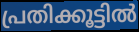
പ്രതിക്കൂട്ടിൽ